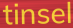
tinsel